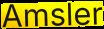
Amsler